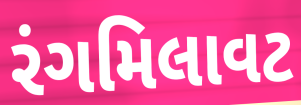
રંગમિલાવટ